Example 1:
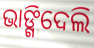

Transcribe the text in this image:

ଭାଙ୍ଗିଦେଲି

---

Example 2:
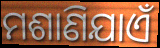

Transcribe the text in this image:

ମଶାଣିଯାଏଁ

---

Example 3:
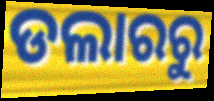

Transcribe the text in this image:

ଡଲାରରୁ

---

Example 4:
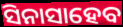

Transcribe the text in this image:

ସିନାସାହେବ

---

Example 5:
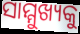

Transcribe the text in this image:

ସାମ୍ମୁଖ୍ୟକୁ